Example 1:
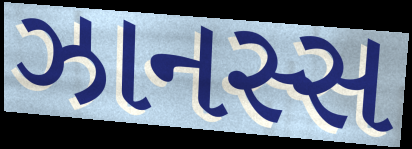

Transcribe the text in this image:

ઝાનસ્સ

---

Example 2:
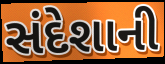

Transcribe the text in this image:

સંદેશાની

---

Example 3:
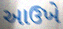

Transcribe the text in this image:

આઉખે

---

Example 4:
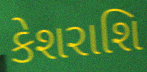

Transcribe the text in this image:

કેશરાશિ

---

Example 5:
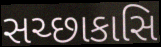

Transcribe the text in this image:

સચ્છાકાસિ